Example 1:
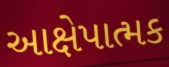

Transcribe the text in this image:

આક્ષેપાત્મક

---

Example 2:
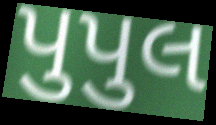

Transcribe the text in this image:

પુપુલ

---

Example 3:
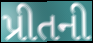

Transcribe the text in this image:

પ્રીતની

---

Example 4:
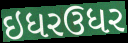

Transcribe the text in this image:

ઇધરઉધર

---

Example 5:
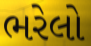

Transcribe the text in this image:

ભરેલો